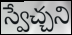
స్వేచ్చని